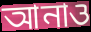
আনাও